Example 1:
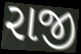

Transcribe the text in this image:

રાજી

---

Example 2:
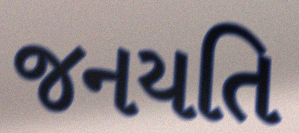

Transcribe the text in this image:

જનયતિ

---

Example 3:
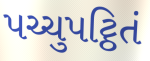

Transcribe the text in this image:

પચ્ચુપટ્ઠિતં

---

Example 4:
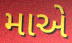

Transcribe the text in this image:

માએ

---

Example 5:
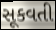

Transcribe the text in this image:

સૂકવતી